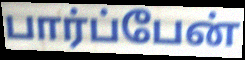
பார்ப்பேன்